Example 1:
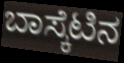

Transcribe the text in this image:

ಬಾಸ್ಕೆಟಿನ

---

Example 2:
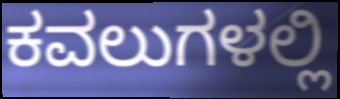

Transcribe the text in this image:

ಕವಲುಗಳಲ್ಲಿ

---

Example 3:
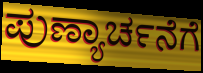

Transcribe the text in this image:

ಪುಣ್ಯಾರ್ಚನೆಗೆ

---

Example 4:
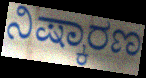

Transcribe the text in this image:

ನಿಷ್ಕಾರಣ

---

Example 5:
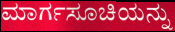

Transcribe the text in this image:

ಮಾರ್ಗಸೂಚಿಯನ್ನು